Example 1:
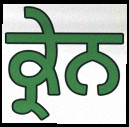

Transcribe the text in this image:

ਕ੍ਰੇਨ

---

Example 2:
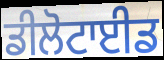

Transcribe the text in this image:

ਡੀਲੋਟਾਈਡ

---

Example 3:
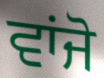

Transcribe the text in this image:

ਵਾਂਜੋ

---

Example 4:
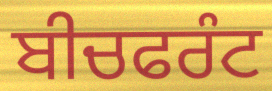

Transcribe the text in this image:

ਬੀਚਫਰੰਟ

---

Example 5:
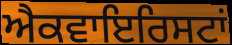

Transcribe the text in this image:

ਐਕਵਾਇਰਿਸਟਾਂ